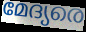
മേദ്യരെ